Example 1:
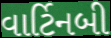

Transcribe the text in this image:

વાર્ટિનબી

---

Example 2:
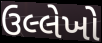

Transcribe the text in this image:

ઉલ્લેખો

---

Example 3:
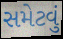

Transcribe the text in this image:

સમેટવું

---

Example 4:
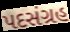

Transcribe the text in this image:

પદસંગ્રહ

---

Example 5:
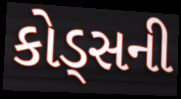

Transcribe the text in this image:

કોડ્સની